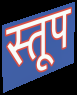
स्तूप